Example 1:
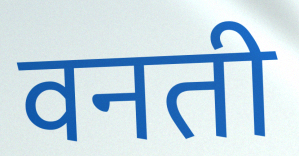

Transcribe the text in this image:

वनती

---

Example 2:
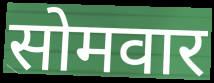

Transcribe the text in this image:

सोमवार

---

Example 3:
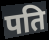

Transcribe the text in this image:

पति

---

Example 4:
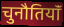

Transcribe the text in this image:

चुनौतियॉं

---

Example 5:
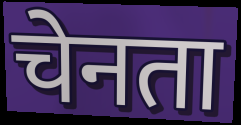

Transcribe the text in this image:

चेनता